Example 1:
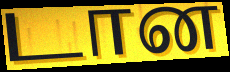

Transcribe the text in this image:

டான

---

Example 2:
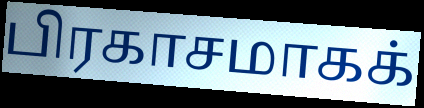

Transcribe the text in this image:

பிரகாசமாகக்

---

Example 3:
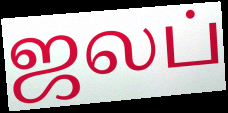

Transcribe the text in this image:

ஜலப்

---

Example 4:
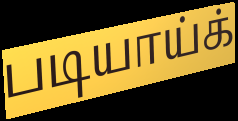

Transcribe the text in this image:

படியாய்க்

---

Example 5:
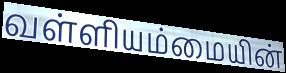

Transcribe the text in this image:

வள்ளியம்மையின்